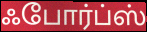
ஃபோர்ப்ஸ்